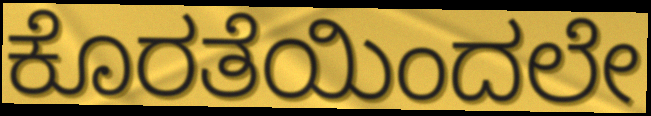
ಕೊರತೆಯಿಂದಲೇ